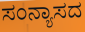
ಸಂನ್ಯಾಸದ